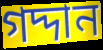
গদ্দান